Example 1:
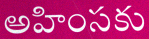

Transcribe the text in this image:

అహింసకు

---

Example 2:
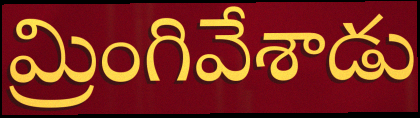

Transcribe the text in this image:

మ్రింగివేశాడు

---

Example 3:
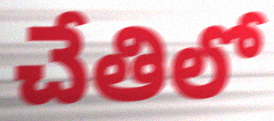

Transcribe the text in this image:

చేతిలో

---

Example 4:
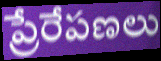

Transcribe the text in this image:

ప్రేరేపణలు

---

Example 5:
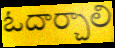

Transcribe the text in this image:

ఓదార్చాలి